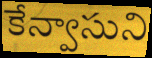
కేన్వాసుని